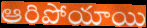
ఆరిపోయాయి